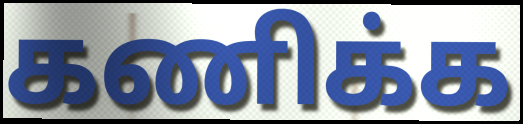
கணிக்க